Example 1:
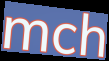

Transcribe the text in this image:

mch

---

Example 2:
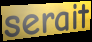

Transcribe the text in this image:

serait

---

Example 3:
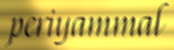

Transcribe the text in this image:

periyammal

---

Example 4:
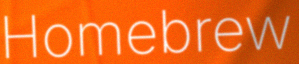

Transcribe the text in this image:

Homebrew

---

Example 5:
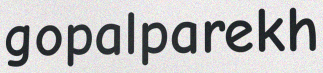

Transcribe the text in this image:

gopalparekh